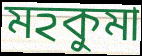
মহকুমা